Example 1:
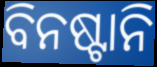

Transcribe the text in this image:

ବିନଷ୍ଟାନି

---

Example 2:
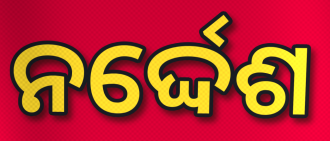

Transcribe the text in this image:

ନର୍ଦ୍ଦେଶ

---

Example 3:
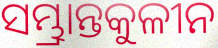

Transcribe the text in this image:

ସମ୍ଭ୍ରାନ୍ତକୁଳୀନ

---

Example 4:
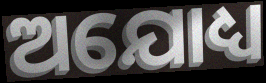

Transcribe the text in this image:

ଅଯୋଧ୍ୟ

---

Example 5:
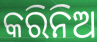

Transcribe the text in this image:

କରିନିଅ